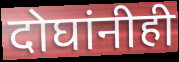
दोघांनीही